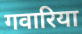
गवारिया